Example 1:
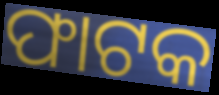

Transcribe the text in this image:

ଫାଟକ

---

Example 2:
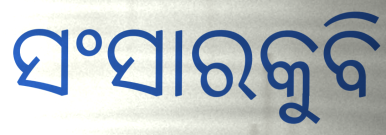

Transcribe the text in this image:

ସଂସାରକୁବି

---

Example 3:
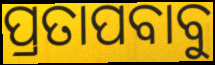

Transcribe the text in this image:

ପ୍ରତାପବାବୁ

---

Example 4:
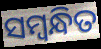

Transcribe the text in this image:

ସମ୍ବନ୍ଧିତ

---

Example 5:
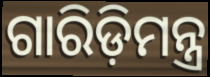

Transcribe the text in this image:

ଗାରିଡ଼ିମନ୍ତ୍ର